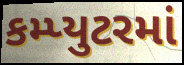
કમ્પ્યુટરમાં